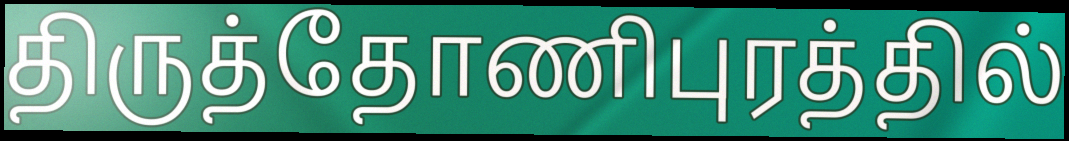
திருத்தோணிபுரத்தில்